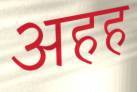
अहह